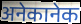
अनेकानेक